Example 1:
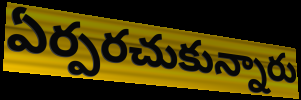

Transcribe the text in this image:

ఏర్పరచుకున్నారు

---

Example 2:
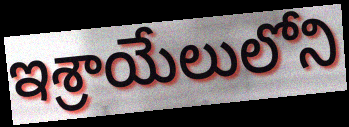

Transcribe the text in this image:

ఇశ్రాయేలులోని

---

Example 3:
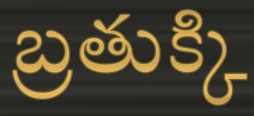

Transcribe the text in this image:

బ్రతుక్కి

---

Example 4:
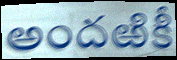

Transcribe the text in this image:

అందఱికీ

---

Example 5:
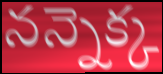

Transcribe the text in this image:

నన్నెక్క